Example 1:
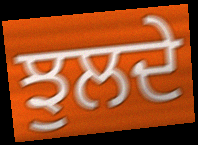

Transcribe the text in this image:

ਝੁਲਦੇ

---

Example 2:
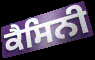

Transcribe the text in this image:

ਕੈਸਿਨੀ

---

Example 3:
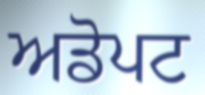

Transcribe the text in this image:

ਅਡੋਪਟ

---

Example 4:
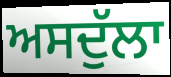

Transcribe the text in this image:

ਅਸਦੁੱਲਾ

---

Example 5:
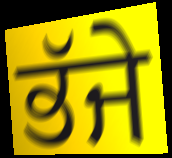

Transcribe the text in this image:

ਭੱਜੇ